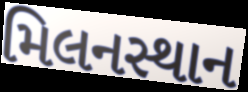
મિલનસ્થાન